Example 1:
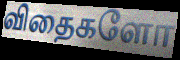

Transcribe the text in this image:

விதைகளோ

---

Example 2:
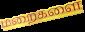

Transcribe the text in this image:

மறைகளை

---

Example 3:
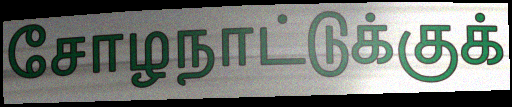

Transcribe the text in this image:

சோழநாட்டுக்குக்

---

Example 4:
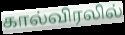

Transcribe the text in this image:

கால்விரலில்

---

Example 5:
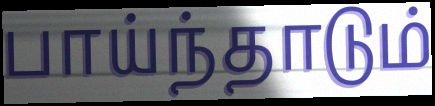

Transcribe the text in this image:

பாய்ந்தாடும்